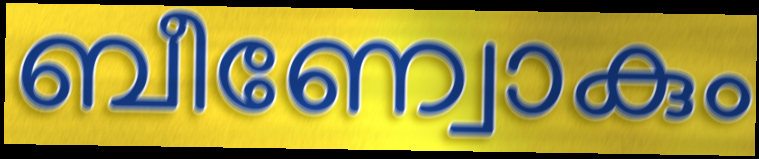
ബീണ്വോകും